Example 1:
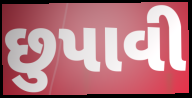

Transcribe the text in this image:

છુપાવી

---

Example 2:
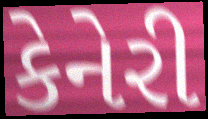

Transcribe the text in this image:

કેનેરી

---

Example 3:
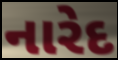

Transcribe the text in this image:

નારેદ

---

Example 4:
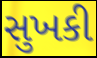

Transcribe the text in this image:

સુખકી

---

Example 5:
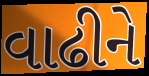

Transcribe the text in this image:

વાઢીને